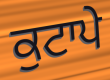
ਕੁਟਾਪੇ